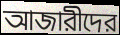
আজারীদের